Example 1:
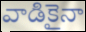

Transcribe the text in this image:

వాడికైనా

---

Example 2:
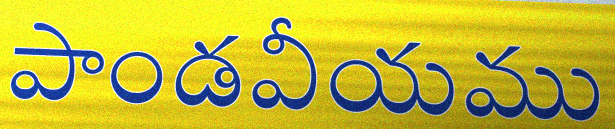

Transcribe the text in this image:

పాండవీయము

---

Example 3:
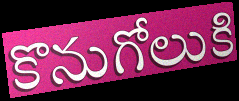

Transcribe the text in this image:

కొనుగోలుకి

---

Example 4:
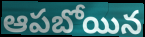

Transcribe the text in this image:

ఆపబోయిన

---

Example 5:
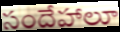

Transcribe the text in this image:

సందేహాలూ